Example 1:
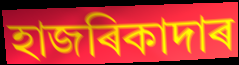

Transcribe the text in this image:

হাজৰিকাদাৰ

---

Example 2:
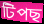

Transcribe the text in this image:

টিপছ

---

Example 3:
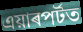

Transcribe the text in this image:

এয়াৰপৰ্টত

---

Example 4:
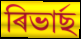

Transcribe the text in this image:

ৰিভাৰ্ছ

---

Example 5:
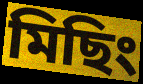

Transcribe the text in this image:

মিছিং